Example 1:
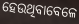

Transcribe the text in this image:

ହେଉଥିବାବେଳେ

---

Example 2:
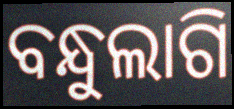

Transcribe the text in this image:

ବନ୍ଧୁଲାଗି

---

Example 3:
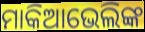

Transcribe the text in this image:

ମାକିଆଭେଲିଙ୍କ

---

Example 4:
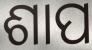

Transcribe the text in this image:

ଶାପ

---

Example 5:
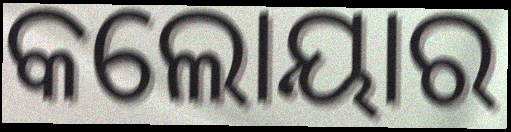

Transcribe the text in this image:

କଲୋୟାର